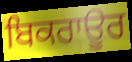
ਬਿਕਰਾਊਰ